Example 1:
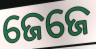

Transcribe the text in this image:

ଜେଜେ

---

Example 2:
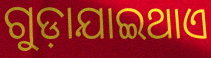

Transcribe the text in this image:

ଗୁଡ଼ାଯାଇଥାଏ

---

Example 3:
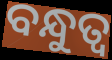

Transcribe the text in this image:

ବନ୍ଧୁତ୍ୱ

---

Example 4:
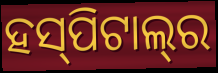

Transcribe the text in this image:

ହସ୍‍ପିଟାଲ୍‍ର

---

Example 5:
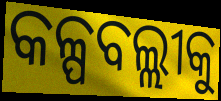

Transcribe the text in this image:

କଳ୍ପବଲ୍ଲୀକୁ